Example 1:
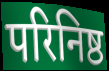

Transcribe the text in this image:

परिनिष्ठ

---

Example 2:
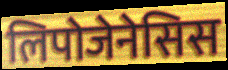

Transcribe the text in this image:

लिपोजेनेसिस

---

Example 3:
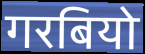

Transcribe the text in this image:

गरबियो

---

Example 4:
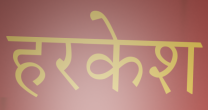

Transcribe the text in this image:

हरकेश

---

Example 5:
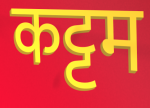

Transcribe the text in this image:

कट्टम